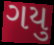
ગયુ